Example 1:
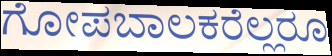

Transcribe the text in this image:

ಗೋಪಬಾಲಕರೆಲ್ಲರೂ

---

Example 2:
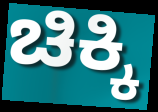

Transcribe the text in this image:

ಚಿಕ್ಕಿ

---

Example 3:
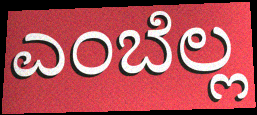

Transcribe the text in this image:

ಎಂಬೆಲ್ಲ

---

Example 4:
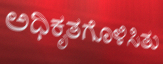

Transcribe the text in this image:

ಅಧಿಕೃತಗೊಳಿಸಿತು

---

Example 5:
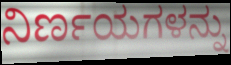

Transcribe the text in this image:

ನಿರ್ಣಯಗಳನ್ನು